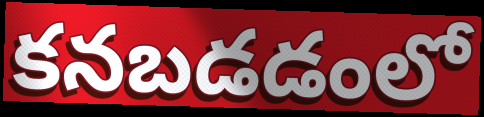
కనబడడంలో